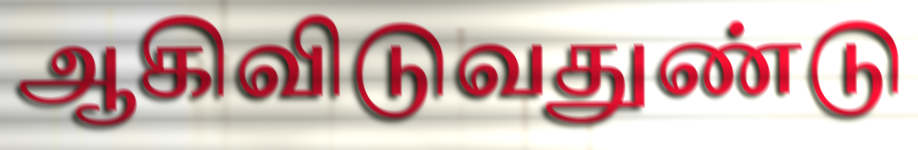
ஆகிவிடுவதுண்டு